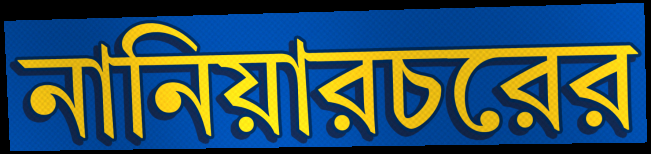
নানিয়ারচরের